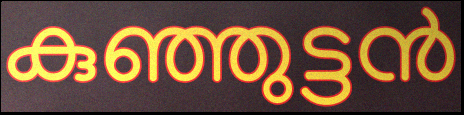
കുഞ്ഞുട്ടൻ